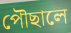
পৌছালে